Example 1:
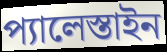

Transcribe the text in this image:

প্যালেস্তাইন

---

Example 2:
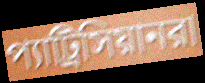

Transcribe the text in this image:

প্যাট্রিসিয়ানরা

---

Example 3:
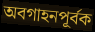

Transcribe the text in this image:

অবগাহনপূর্বক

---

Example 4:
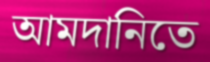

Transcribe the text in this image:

আমদানিতে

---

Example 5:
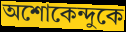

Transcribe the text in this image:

অশোকেন্দুকে